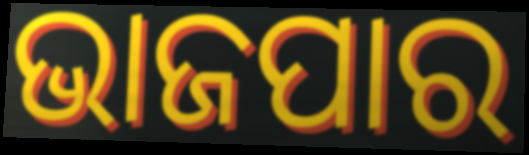
ଭାଜପାର